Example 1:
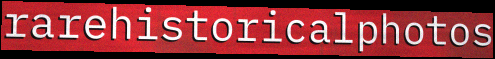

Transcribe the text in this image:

rarehistoricalphotos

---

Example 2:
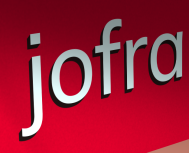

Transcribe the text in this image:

jofra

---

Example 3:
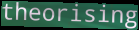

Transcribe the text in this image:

theorising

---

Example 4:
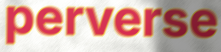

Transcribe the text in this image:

perverse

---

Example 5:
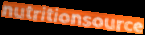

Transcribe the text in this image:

nutritionsource